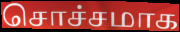
சொச்சமாக